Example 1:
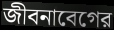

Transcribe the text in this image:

জীবনাবেগের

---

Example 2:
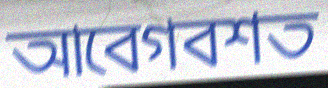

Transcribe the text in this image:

আবেগবশত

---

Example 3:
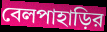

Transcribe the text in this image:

বেলপাহাড়ির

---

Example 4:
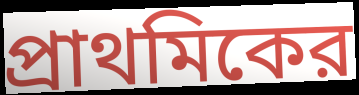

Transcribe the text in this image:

প্রাথমিকের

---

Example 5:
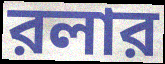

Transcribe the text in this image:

রলার